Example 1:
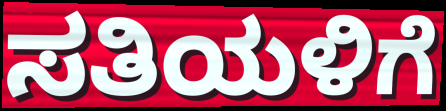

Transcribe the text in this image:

ಸತಿಯಳಿಗೆ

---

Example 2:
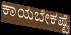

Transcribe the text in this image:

ಕಾಯಬೇಕಷ್ಟೆ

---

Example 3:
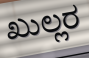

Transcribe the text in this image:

ಖುಲ್ಲರ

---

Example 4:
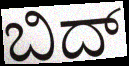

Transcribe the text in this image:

ಬಿದ್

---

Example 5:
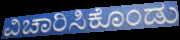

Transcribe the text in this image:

ವಿಚಾರಿಸಿಕೊಂಡು